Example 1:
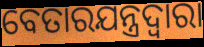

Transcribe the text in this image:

ବେତାରଯନ୍ତ୍ରଦ୍ୱାରା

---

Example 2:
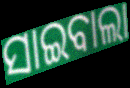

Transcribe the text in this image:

ସାଇବାଲା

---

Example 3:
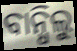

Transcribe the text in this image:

ବାନ୍ଧିଲୁ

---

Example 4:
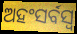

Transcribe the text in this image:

ଅହଂସର୍ବସ୍ୱ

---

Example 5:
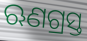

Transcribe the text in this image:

ଋଣଗ୍ରସ୍ତ